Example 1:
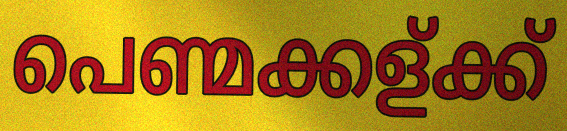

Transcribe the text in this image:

പെണ്മക്കള്ക്ക്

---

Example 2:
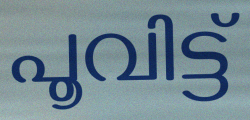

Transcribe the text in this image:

പൂവിട്ട്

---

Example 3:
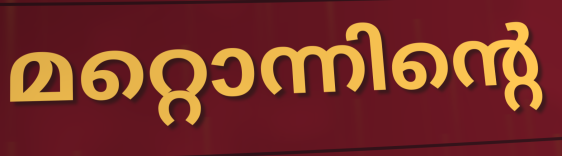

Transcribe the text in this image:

മറ്റൊന്നിന്റെ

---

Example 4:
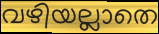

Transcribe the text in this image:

വഴിയല്ലാതെ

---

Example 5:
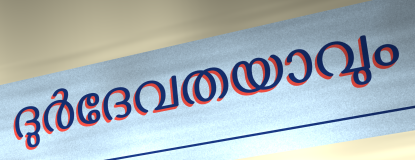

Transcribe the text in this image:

ദുർദേവതയാവും